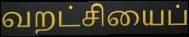
வறட்சியைப்